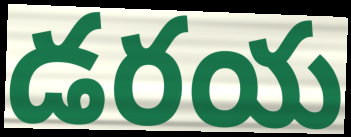
డరయ